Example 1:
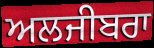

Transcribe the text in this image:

ਅਲਜੀਬਰਾ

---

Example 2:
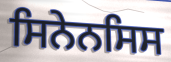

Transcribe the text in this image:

ਸਿਨੇਨਸਿਸ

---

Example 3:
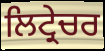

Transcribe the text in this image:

ਲਿਟ੍ਰੇਚਰ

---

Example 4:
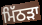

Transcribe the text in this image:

ਮਿੱਠੜਾ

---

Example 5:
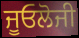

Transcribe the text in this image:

ਜੂਓਲੋਜੀ